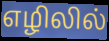
எழிலில்